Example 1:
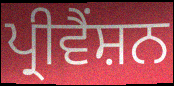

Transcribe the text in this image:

ਪ੍ਰੀਵੈਂਸ਼ਨ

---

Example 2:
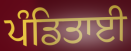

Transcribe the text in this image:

ਪੰਡਿਤਾਈ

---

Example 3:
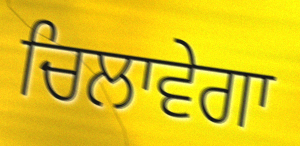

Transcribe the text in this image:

ਚਿਲਾਵੇਗਾ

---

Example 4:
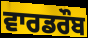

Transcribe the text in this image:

ਵਾਰਡਰੌਬ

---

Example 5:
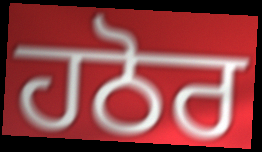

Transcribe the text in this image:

ਹਠੋਰ